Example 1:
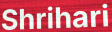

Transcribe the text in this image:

Shrihari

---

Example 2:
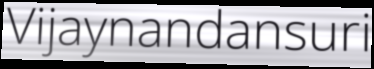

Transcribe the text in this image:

Vijaynandansuri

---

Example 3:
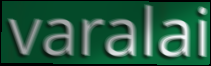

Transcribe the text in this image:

varalai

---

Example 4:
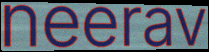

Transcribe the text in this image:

neerav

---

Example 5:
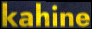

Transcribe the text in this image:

kahine